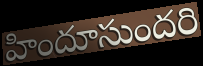
హిందూసుందరి